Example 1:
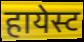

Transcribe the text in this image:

हायेस्ट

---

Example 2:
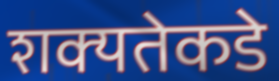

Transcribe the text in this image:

शक्यतेकडे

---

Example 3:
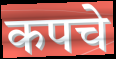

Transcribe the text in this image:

कपचे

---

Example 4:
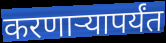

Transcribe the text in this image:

करणाऱ्यापर्यंत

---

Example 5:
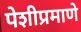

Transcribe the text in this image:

पेशीप्रमाणे